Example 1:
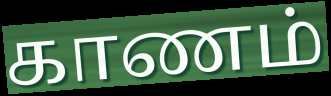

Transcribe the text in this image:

காணம்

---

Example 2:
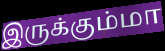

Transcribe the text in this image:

இருக்கும்மா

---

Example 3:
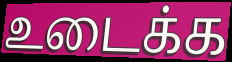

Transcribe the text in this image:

உடைக்க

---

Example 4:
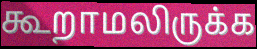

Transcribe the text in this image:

கூறாமலிருக்க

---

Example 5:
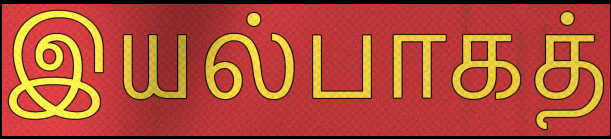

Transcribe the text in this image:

இயல்பாகத்